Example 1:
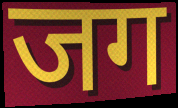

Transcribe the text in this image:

जग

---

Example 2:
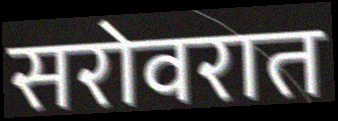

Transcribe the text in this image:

सरोवरात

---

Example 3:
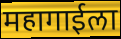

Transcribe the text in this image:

महागाईला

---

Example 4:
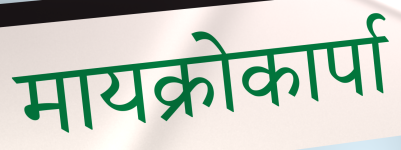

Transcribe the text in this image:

मायक्रोकार्पा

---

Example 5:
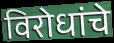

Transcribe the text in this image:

विरोधांचे